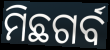
ମିଛଗର୍ବ